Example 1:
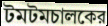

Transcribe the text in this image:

টমটমচালকের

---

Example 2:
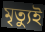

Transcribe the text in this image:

মৃত্যুই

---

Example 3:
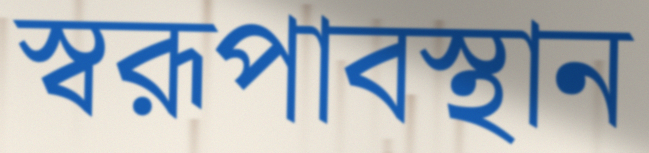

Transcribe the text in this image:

স্বরূপাবস্থান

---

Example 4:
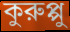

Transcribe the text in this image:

কুরুপ্পু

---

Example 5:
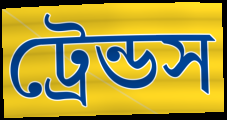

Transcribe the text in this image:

ট্রেন্ডস